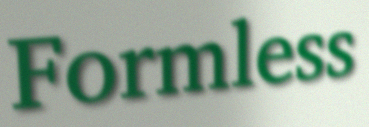
Formless